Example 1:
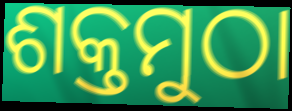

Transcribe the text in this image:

ଶକ୍ତମୁଠା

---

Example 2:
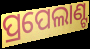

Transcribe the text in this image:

ପ୍ରପେଲାଣ୍ଟ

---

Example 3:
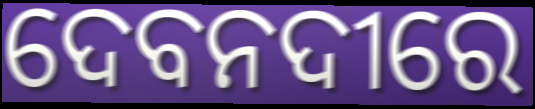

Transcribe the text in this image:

ଦେବନଦୀରେ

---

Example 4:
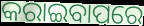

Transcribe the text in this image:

କରାଇବାପରେ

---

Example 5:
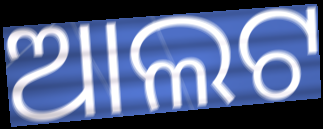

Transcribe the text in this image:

ଆଲଟ